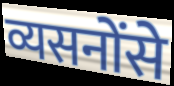
व्यसनोंसे